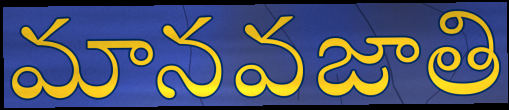
మానవజాతి